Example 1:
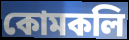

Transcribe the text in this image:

কোমকলি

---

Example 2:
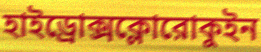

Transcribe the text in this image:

হাইড্রোক্সক্লোরোকুইন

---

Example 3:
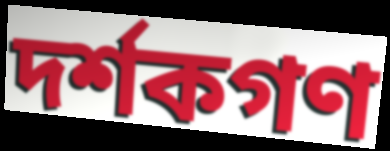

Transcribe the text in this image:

দর্শকগণ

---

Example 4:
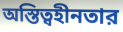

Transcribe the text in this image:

অস্তিত্বহীনতার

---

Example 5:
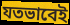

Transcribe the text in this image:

যতভাবেই